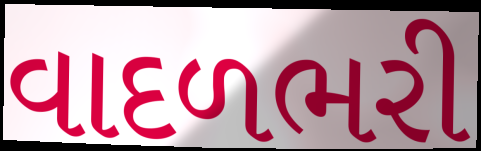
વાદળભરી